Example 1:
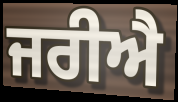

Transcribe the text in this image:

ਜਰੀਐ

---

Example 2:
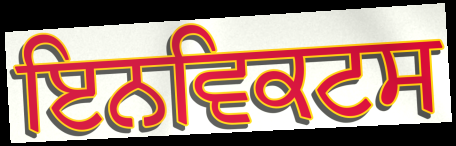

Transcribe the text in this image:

ਇਨਵਿਕਟਸ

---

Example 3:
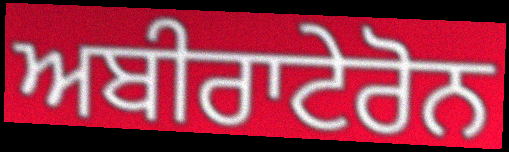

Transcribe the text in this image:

ਅਬੀਰਾਟੇਰੋਨ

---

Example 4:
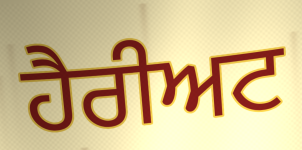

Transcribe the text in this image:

ਹੈਰੀਅਟ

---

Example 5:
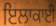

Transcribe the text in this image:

ਇਲਾਕਾਈ